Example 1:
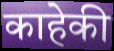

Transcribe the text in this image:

काहेकी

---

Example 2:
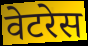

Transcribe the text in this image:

वेटरेस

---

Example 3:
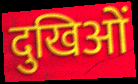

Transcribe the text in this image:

दुखिओं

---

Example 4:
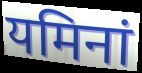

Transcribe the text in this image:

यमिनां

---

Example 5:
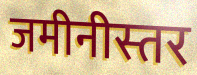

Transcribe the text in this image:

जमीनीस्तर